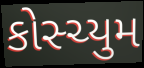
કોસ્ચ્યુમ